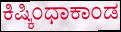
ಕಿಷ್ಕಿಂಧಾಕಾಂಡ